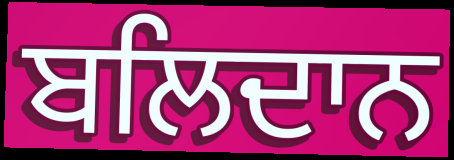
ਬਲਿਦਾਨ